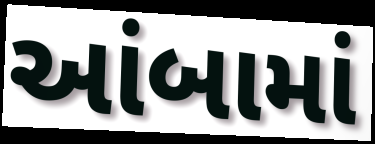
આંબામાં